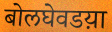
बोलघेवडय़ा